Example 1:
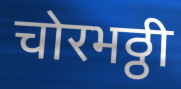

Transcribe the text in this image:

चोरभठ्ठी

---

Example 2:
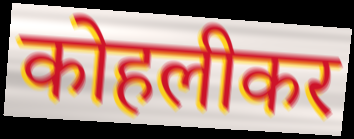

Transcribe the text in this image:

कोहलीकर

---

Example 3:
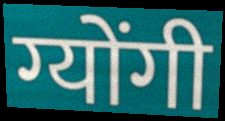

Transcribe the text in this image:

ग्योंगी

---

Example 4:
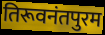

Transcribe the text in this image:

तिरूवनंतपुरम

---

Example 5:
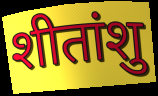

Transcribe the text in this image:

शीतांशु